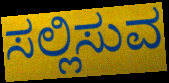
ಸಲ್ಲಿಸುವ